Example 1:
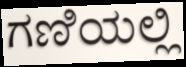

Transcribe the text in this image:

ಗಣಿಯಲ್ಲಿ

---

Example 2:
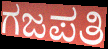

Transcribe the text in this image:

ಗಜಪತಿ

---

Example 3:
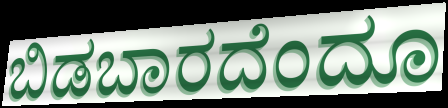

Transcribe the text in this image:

ಬಿಡಬಾರದೆಂದೂ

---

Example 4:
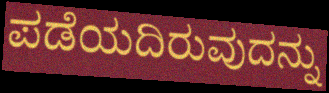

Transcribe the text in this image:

ಪಡೆಯದಿರುವುದನ್ನು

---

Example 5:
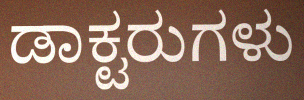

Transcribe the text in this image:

ಡಾಕ್ಟರುಗಳು